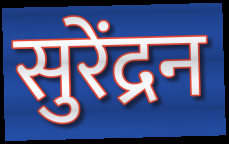
सुरेंद्रन